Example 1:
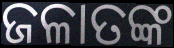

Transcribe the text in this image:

ଜଳାତଙ୍କ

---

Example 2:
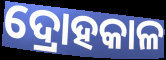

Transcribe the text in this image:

ଦ୍ରୋହକାଳ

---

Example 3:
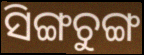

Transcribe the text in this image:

ସିଙ୍ଗଚୁଙ୍ଗ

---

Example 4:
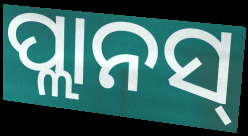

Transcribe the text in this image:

ପ୍ଲାନସ୍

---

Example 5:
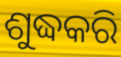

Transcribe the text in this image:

ଶୁଦ୍ଧକରି